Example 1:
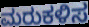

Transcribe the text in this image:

ಮರುಕಳಿಸ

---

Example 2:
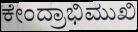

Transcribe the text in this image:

ಕೇಂದ್ರಾಭಿಮುಖಿ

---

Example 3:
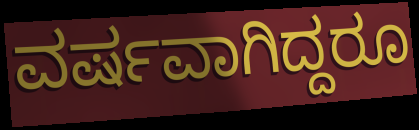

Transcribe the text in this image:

ವರ್ಷವಾಗಿದ್ದರೂ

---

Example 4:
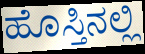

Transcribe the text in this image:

ಹೊಸ್ತಿನಲ್ಲಿ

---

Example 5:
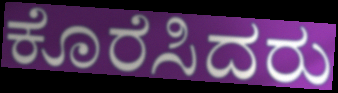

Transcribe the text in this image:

ಕೊರೆಸಿದರು